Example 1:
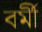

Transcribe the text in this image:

বর্মী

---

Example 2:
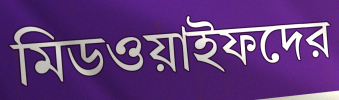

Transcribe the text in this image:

মিডওয়াইফদের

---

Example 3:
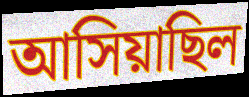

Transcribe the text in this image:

আসিয়াছিল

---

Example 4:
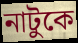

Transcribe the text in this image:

নাটুকে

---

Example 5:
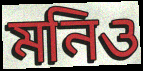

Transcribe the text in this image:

মনিও